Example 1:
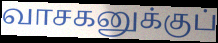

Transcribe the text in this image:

வாசகனுக்குப்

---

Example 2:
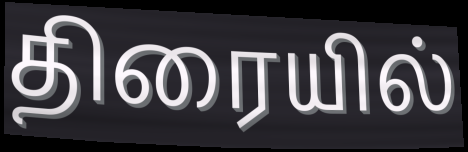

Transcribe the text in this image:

திரையில்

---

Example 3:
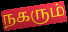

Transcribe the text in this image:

நகரும்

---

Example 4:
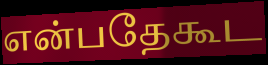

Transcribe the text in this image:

என்பதேகூட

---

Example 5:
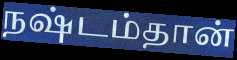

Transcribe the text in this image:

நஷ்டம்தான்